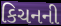
કિચનની